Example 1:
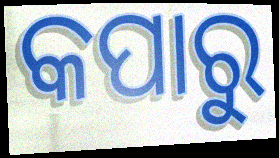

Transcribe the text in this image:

କପାରୁ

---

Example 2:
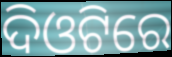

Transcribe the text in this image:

ଦିଓଟିରେ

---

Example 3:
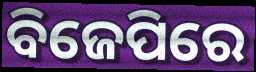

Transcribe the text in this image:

ବିଜେପିରେ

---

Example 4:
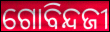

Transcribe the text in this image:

ଗୋବିନ୍ଦଜୀ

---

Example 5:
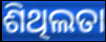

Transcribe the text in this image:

ଶିଥିଲତା